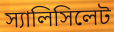
স্যালিসিলেট